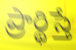
ప్రార్థిస్తే